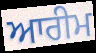
ਆਰੀਮ